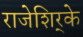
राजेशिर्के